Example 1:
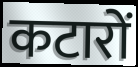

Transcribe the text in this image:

कटारों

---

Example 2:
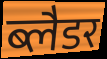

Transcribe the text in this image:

ब्लैडर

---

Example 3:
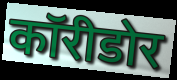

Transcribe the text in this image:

कॉरीडोर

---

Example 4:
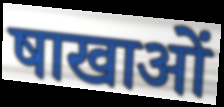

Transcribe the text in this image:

षाखाओं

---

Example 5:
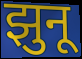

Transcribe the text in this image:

झुनू